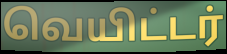
வெயிட்டர்